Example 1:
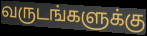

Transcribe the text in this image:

வருடங்களுக்கு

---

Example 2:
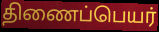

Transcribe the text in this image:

திணைப்பெயர்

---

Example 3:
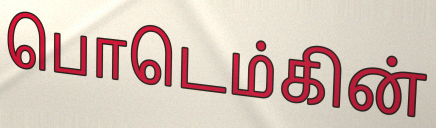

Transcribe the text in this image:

பொடெம்கின்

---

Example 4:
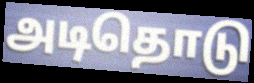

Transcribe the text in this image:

அடிதொடு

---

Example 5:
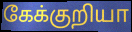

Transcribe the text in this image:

கேக்குறியா